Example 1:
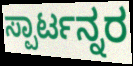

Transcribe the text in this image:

ಸ್ಪಾರ್ಟನ್ನರ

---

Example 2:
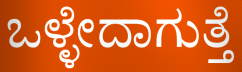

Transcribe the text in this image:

ಒಳ್ಳೇದಾಗುತ್ತೆ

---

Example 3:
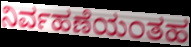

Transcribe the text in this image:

ನಿರ್ವಹಣೆಯಂತಹ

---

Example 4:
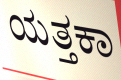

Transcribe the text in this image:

ಯತ್ತಕಾ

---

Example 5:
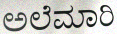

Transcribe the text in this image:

ಅಲೆಮಾರಿ